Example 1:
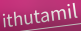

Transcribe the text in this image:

ithutamil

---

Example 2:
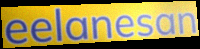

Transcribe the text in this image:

eelanesan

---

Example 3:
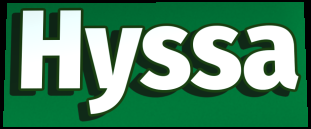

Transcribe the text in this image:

Hyssa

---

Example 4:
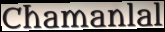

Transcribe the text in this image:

Chamanlal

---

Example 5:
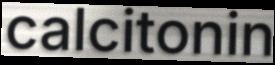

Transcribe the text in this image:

calcitonin